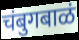
चंबुगबाळं